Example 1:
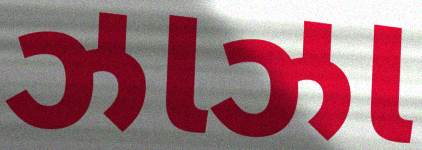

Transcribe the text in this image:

ઝાઝા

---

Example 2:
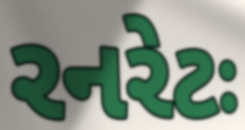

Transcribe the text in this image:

રનરેટઃ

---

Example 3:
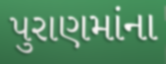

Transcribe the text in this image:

પુરાણમાંના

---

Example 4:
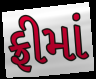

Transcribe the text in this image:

ફ્રીમાં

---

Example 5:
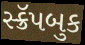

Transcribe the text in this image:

સ્ક્રૅપબુક